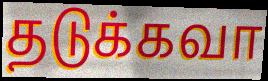
தடுக்கவா